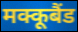
मक्कूबैंड